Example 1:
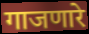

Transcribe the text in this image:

गाजणारे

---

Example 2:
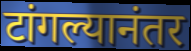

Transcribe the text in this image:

टांगल्यानंतर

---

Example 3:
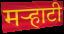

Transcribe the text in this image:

मर्‍हाटी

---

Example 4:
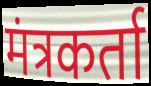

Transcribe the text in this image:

मंत्रकर्ता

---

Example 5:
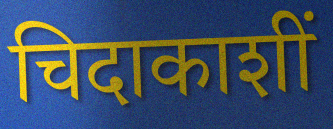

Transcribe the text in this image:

चिदाकाशीं